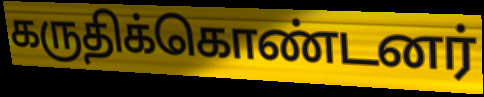
கருதிக்கொண்டனர்